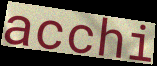
acchi